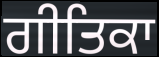
ਗੀਤਿਕਾ